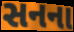
સનના